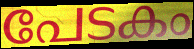
പേടകം